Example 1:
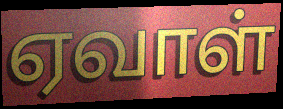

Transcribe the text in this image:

ஏவாள்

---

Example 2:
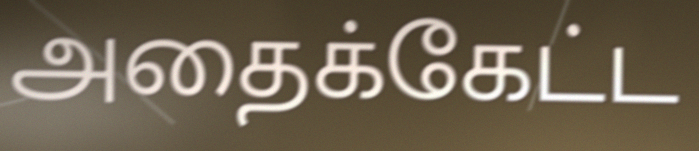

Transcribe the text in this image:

அதைக்கேட்ட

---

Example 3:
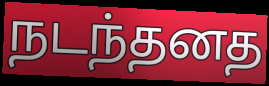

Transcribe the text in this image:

நடந்தனத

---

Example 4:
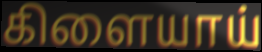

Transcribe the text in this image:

கிளையாய்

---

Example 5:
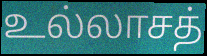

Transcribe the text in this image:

உல்லாசத்